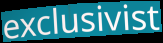
exclusivist